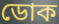
ডোক